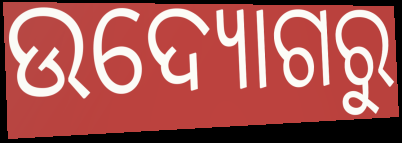
ଉଦ୍ୟୋଗରୁ